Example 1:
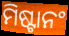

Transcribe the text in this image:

ମିଷ୍ଟାନଂ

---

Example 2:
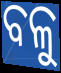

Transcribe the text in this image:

ବଳୁ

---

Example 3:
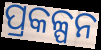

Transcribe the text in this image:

ପ୍ରକଳ୍ପନ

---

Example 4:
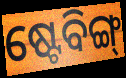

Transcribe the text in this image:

ଷ୍ଟେବିଙ୍ଗ୍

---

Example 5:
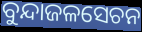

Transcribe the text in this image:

ବୁନ୍ଦାଜଳସେଚନ